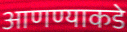
आणण्याकडे